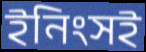
ইনিংসই